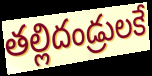
తల్లిదండ్రులకే